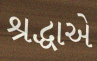
શ્રદ્ધાએ